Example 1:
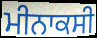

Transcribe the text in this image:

ਮੀਨਾਕਸੀ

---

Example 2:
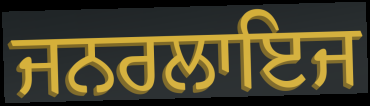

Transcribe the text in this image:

ਜਨਰਲਾਇਜ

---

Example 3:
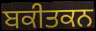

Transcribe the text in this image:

ਬਕੀਤਕਨ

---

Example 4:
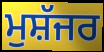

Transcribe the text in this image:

ਮੁਸ਼ੱਜਰ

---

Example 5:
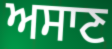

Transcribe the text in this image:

ਅਸਾਣ